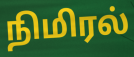
நிமிரல்